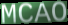
MCAO